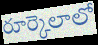
రూర్కెలాలో